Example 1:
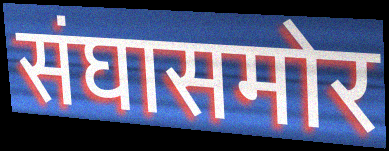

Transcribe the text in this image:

संघासमोर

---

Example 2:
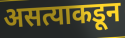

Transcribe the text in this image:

असत्याकडून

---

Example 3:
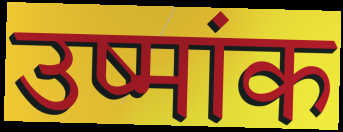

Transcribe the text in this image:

उष्मांक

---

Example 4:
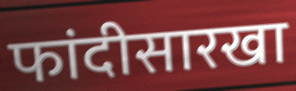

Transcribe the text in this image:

फांदीसारखा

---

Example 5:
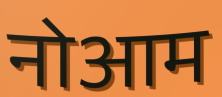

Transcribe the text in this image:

नोआम